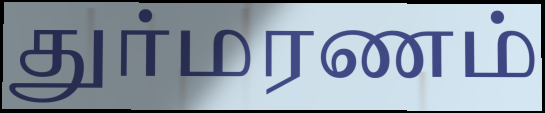
துர்மரணம்